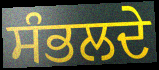
ਸੰਭਲਦੇ